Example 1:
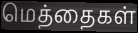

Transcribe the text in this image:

மெத்தைகள்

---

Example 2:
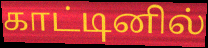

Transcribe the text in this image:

காட்டினில்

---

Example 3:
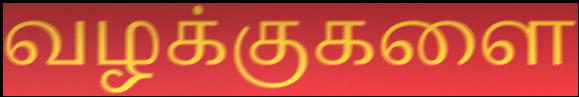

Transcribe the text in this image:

வழக்குகளை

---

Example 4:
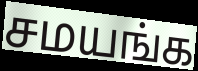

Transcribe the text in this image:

சமயங்க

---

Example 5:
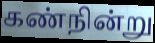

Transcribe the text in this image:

கண்நின்று